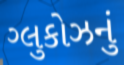
ગ્લુકોઝનું